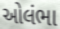
ઓલંભા